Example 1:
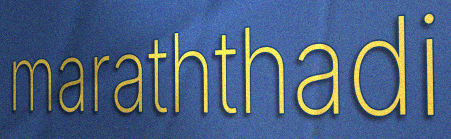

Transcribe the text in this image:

maraththadi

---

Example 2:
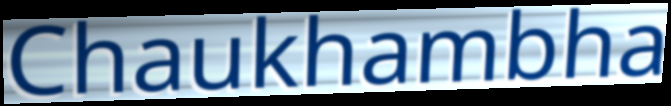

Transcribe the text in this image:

Chaukhambha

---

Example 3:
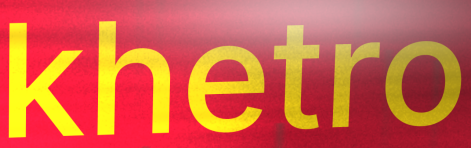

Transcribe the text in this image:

khetro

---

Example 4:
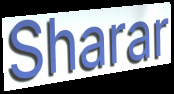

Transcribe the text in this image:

Sharar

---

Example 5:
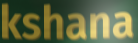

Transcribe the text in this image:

kshana